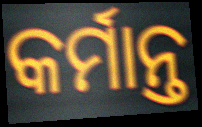
କର୍ମାନ୍ତ